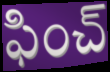
ఫించ్